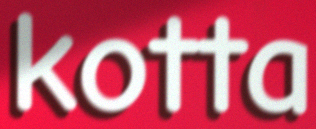
kotta